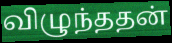
விழுந்ததன்